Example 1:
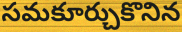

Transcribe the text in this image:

సమకూర్చుకొనిన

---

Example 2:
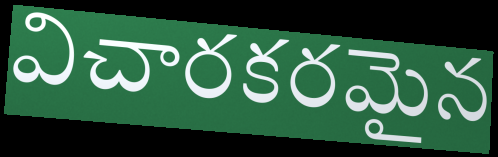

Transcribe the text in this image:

విచారకరమైన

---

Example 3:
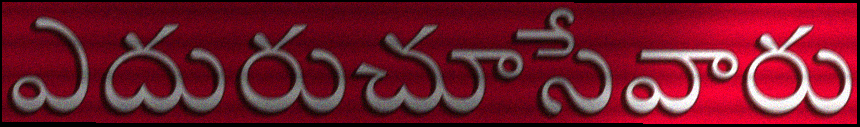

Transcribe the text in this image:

ఎదురుచూసేవారు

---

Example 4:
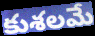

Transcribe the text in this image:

కుశలమే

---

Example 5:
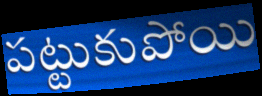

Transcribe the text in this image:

పట్టుకుపోయి